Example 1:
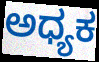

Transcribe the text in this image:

ಅಧ್ಯಕ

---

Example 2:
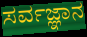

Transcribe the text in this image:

ಸರ್ವಜ್ಞಾನ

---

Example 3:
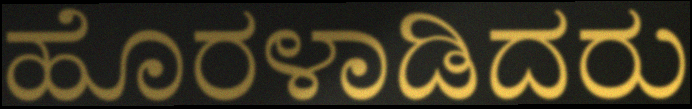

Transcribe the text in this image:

ಹೊರಳಾಡಿದರು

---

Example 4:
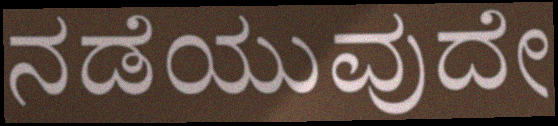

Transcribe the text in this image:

ನಡೆಯುವುದೇ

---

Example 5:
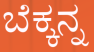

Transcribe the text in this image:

ಬೆಕ್ಕನ್ನ